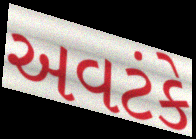
અવટંકે